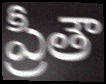
ప్రీతౌ